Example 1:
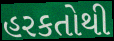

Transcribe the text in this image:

હરકતોથી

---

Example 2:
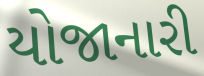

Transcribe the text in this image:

યોજાનારી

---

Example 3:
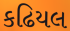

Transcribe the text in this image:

કઢિયલ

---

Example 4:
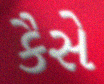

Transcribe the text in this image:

કૈસે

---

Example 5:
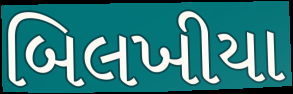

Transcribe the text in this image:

બિલખીયા